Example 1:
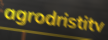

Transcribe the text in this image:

agrodristitv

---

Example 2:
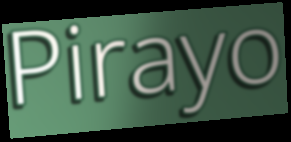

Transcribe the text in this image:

Pirayo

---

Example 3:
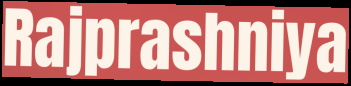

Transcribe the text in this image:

Rajprashniya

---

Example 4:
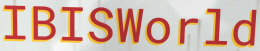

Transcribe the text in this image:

IBISWorld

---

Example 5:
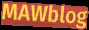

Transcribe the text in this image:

MAWblog